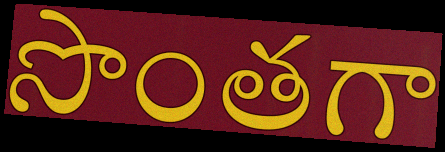
సొంతగా